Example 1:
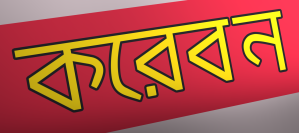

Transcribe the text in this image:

করেবন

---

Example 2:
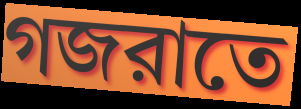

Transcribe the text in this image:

গজরাতে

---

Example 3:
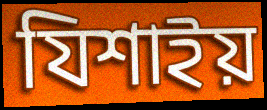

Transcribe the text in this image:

যিশাইয়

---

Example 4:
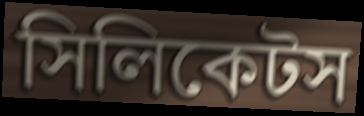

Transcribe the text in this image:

সিলিকেটস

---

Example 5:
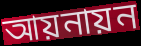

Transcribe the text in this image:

আয়নায়ন